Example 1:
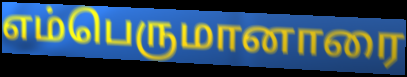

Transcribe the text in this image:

எம்பெருமானாரை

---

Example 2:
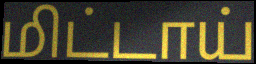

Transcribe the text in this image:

மிட்டாய்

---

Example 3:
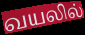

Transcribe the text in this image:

வயலில்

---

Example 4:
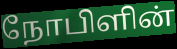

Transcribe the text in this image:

நோபிளின்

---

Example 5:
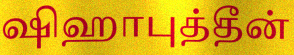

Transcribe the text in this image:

ஷிஹாபுத்தீன்